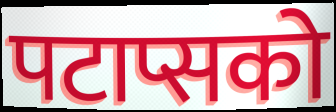
पटाप्सको